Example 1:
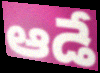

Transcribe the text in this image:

ఆడే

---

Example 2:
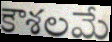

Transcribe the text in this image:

కౌశలమే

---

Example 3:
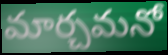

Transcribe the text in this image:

మార్చమనో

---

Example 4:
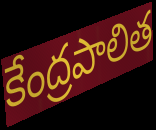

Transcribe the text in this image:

కేంద్రపాలిత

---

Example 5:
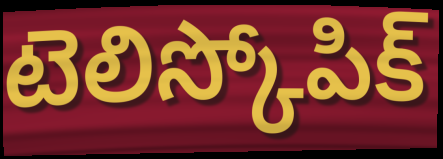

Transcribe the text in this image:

టెలిస్కోపిక్